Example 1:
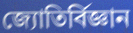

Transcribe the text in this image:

জ্যোতিৰ্বিজ্ঞান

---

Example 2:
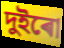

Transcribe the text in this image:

দুইৰো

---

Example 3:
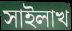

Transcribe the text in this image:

সাইলাখ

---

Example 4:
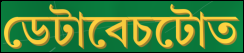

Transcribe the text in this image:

ডেটাবেচটোত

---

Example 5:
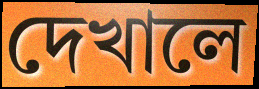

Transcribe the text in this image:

দেখালে